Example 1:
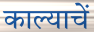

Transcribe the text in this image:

काल्याचें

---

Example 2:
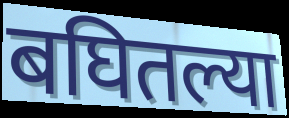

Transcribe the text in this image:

बघितल्या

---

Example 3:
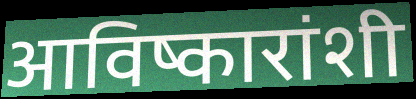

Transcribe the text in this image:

आविष्कारांशी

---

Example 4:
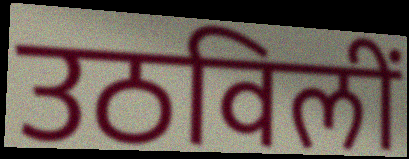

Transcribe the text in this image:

उठविलीं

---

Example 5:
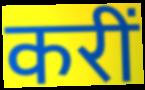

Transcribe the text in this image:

करीं